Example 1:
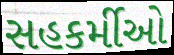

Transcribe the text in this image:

સહકર્મીઓ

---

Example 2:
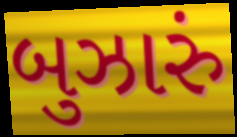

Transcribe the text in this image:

બુઝારું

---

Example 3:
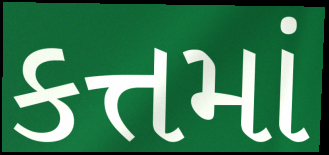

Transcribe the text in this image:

કત્તમાં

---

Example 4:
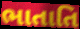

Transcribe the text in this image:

ભાતાતિ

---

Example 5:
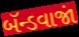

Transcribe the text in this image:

બૅન્ડવાજાં